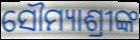
ସୌମ୍ୟାଶ୍ରୀଙ୍କ